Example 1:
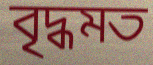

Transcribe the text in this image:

বৃদ্ধমত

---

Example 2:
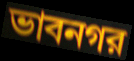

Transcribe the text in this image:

ভাবনগর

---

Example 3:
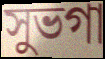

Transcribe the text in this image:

সুভগা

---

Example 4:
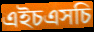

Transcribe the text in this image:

এইচএসচি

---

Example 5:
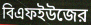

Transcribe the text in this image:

বিএফইউজের